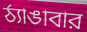
ঠ্যাঙাবার